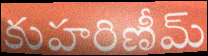
కుహరిణీమ్